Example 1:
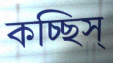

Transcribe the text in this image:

কচ্ছিস্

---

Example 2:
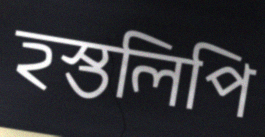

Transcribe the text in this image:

হস্তলিপি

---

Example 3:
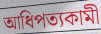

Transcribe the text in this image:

আধিপত্যকামী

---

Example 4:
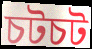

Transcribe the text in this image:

চটচট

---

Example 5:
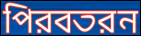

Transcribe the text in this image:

পিরবতরন